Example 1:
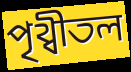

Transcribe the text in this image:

পৃথ্বীতল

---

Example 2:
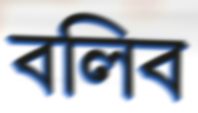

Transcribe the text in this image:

বলিব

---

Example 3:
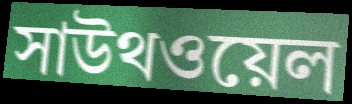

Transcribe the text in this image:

সাউথওয়েল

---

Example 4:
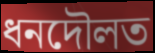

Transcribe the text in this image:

ধনদৌলত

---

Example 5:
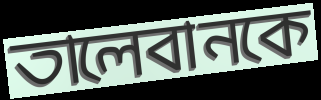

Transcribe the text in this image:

তালেবানকে